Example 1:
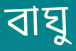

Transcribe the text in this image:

বাঘু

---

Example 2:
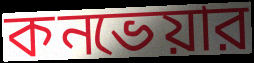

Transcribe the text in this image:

কনভেয়ার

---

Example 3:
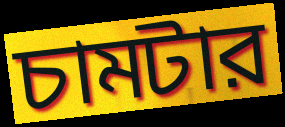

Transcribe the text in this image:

চামটার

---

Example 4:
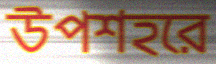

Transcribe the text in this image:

উপশহরে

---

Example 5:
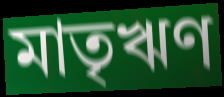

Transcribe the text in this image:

মাতৃঋণ